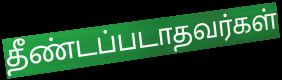
தீண்டப்படாதவர்கள்